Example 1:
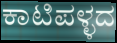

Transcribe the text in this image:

ಕಾಟಿಪಳ್ಳದ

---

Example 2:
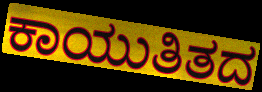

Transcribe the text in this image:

ಕಾಯುತಿತದ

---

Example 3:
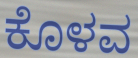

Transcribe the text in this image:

ಕೊಳವ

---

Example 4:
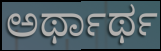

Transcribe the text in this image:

ಅರ್ಥಾರ್ಥ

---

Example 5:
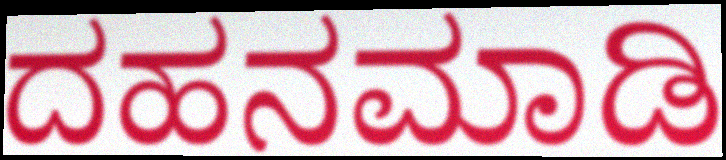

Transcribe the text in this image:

ದಹನಮಾಡಿ